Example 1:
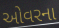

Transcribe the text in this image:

ઓવરના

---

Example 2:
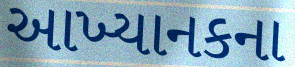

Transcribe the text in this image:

આખ્યાનકના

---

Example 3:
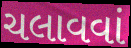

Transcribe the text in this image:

ચલાવવાં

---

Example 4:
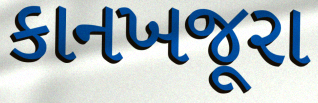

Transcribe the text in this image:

કાનખજૂરા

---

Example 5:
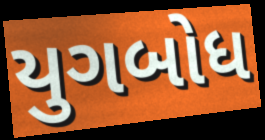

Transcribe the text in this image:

યુગબોધ